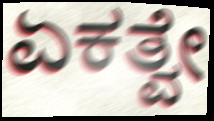
ಏಕತ್ವೇ